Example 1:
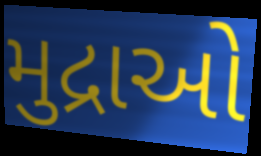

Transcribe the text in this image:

મુદ્રાઓ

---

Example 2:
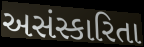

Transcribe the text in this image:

અસંસ્કારિતા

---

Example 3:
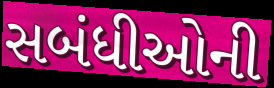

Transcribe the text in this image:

સબંધીઓની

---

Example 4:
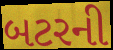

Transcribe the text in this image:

બટરની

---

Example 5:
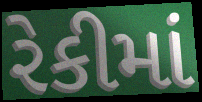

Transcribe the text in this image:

રેકીમાં